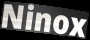
Ninox